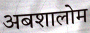
अबशालोम